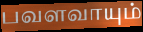
பவளவாயும்